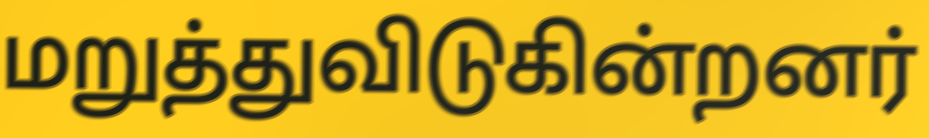
மறுத்துவிடுகின்றனர்